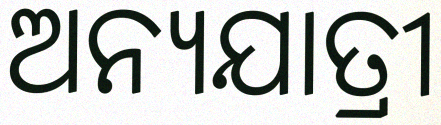
ଅନ୍ଯଯାତ୍ରୀ